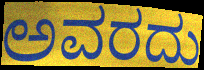
ಅವರದು